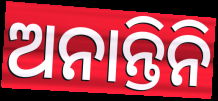
ଅନାନ୍ତିନି